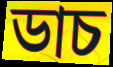
ডাচ